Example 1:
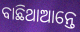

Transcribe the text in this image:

ବାଛିଥାଆନ୍ତେ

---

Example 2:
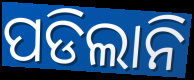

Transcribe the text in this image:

ପଡିଲାନି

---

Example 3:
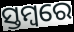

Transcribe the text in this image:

ସ୍ତମ୍ବରେ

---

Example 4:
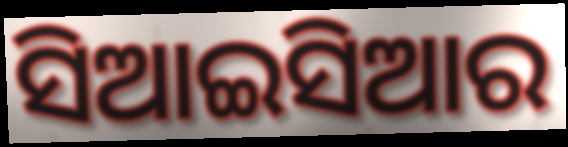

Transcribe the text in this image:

ସିଆଇସିଆର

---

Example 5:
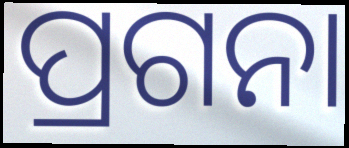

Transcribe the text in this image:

ପ୍ରଗନା